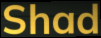
Shad